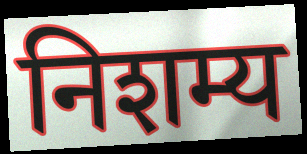
निशम्य